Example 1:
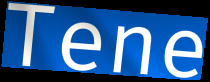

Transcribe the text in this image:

Tene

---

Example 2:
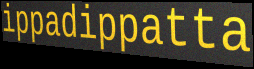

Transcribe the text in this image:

ippadippatta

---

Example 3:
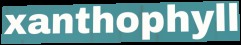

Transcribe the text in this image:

xanthophyll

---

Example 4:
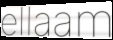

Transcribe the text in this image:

ellaam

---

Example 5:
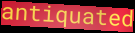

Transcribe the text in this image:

antiquated